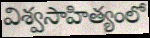
విశ్వసాహిత్యంలో